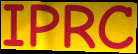
IPRC